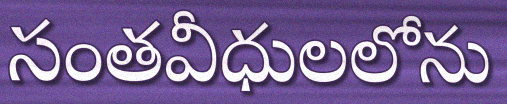
సంతవీధులలోను